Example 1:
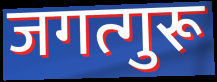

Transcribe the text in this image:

जगत्गुरू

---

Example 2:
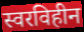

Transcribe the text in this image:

स्वरविहीन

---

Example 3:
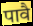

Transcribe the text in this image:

पावै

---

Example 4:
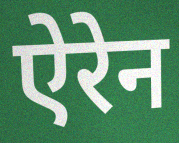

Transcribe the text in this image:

ऐरेन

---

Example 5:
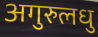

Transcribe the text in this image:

अगुरुलधु